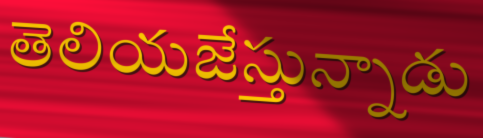
తెలియజేస్తున్నాడు